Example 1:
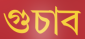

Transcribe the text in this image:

গুচাব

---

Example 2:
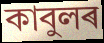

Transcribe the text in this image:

কাবুলৰ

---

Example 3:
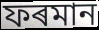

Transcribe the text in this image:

ফৰমান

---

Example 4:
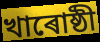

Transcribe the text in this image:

খাৰোষ্ঠী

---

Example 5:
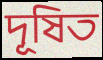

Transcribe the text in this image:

দূষিত